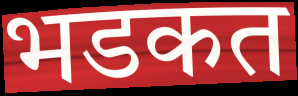
भडकत